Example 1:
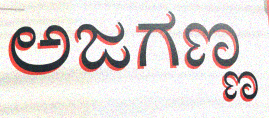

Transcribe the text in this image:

ಅಜಗಣ್ಣ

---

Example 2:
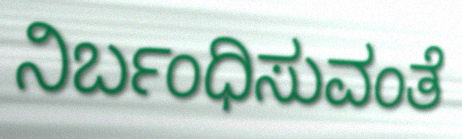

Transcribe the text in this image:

ನಿರ್ಬಂಧಿಸುವಂತೆ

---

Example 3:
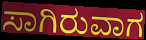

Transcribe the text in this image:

ಸಾಗಿರುವಾಗ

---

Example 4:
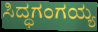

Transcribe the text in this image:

ಸಿದ್ಧಗಂಗಯ್ಯ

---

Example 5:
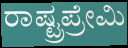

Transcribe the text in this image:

ರಾಷ್ಟ್ರಪ್ರೇಮಿ